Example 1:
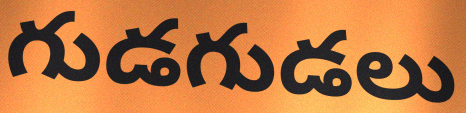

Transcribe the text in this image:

గుడగుడలు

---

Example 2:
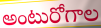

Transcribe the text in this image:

అంటురోగాల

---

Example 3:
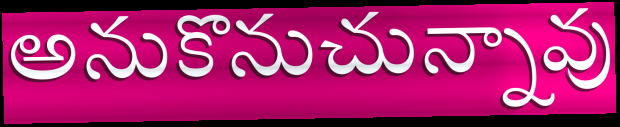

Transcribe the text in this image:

అనుకొనుచున్నావు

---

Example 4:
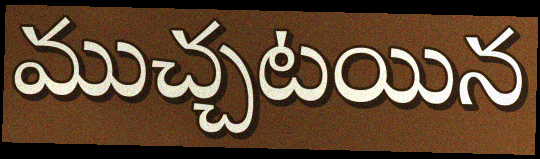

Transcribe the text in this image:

ముచ్చటయిన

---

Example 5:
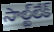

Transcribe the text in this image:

సాల్ట్‌లేక్